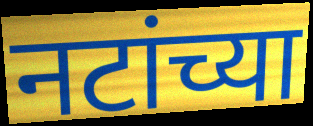
नटांच्या